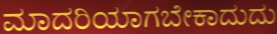
ಮಾದರಿಯಾಗಬೇಕಾದುದು